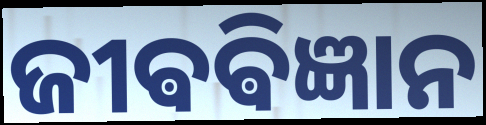
ଜୀଵଵିଜ୍ଞାନ